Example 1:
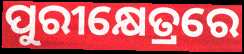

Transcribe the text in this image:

ପୁରୀକ୍ଷେତ୍ରରେ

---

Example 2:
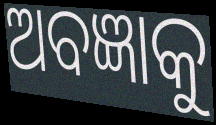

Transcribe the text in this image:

ଅବଜ୍ଞାକୁ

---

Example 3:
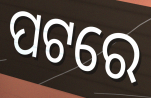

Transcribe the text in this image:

ପଟରେ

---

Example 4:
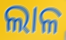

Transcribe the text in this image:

ଲାଳ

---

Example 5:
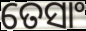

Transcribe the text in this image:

ତେସାଂ